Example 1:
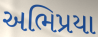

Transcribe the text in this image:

અભિપ્રયા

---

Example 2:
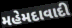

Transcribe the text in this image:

મહેમદાવાદી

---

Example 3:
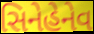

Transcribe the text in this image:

સિનેહેનેવ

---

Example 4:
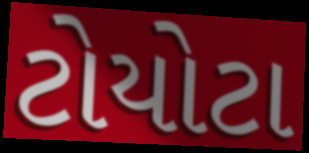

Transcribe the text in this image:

ટોયોટા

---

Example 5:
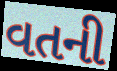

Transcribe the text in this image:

વતની